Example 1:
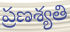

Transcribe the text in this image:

ప్రణశ్యతి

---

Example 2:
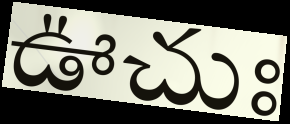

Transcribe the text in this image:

ఊచుః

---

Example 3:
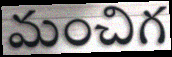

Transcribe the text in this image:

మంచిగ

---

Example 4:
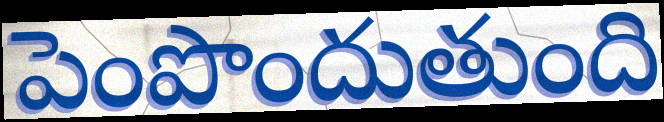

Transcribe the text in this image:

పెంపొందుతుంది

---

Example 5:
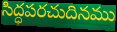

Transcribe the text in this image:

సిద్ధపరచుదినము